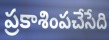
ప్రకాశింపచేసేది